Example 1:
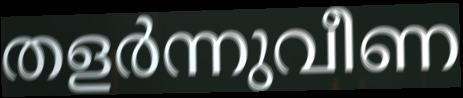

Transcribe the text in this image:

തളർന്നുവീണ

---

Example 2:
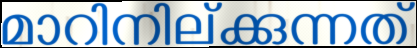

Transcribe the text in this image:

മാറിനില്ക്കുന്നത്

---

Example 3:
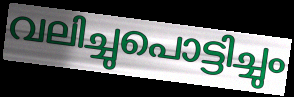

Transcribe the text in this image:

വലിച്ചുപൊട്ടിച്ചും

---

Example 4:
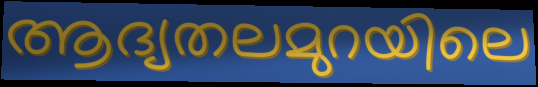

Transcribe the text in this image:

ആദ്യതലമുറയിലെ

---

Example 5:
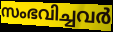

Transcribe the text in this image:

സംഭവിച്ചവർ